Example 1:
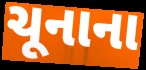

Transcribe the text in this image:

ચૂનાના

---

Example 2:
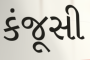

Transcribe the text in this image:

કંજૂસી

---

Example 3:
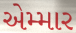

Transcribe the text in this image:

એમ્માર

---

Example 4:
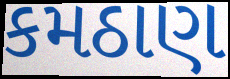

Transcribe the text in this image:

કમઠાણ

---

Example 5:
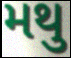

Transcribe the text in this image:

મથુ